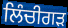
ਲਿੰਚੀਗੜ